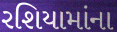
રશિયામાંના